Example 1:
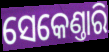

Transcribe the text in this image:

ସେକେଣ୍ତାରି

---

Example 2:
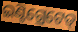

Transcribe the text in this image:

ଇଣ୍ଟିଗ୍ରେଟେଡ୍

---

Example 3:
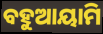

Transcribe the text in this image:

ବହୁଆୟାମି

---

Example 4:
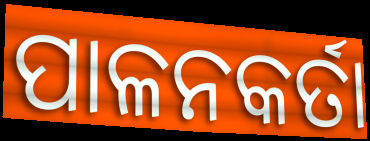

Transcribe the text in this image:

ପାଳନକର୍ତା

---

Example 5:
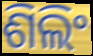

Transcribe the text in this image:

ଶିଲିଂ